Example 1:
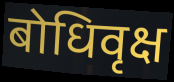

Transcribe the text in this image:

बोधिवृक्ष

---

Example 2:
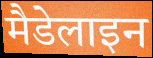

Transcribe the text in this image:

मैडेलाइन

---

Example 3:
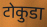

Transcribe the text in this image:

टोकुडा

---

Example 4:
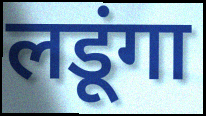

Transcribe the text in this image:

लडूंगा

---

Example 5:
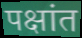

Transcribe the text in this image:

पक्षांत